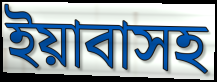
ইয়াবাসহ